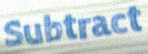
Subtract